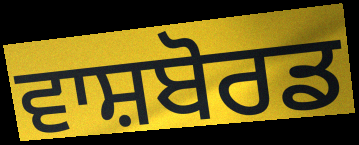
ਵਾਸ਼ਬੋਰਡ